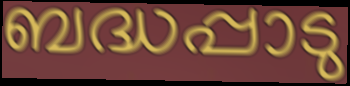
ബദ്ധപ്പാടു